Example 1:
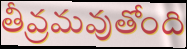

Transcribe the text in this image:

తీవ్రమవుతోంది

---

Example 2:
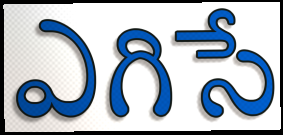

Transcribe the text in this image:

ఎగిసే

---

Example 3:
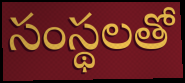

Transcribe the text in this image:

సంస్థలతో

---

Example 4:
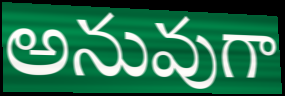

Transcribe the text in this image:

అనువుగా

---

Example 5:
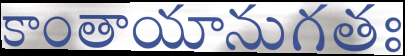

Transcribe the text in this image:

కాంతాయానుగతః